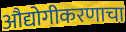
औद्योगीकरणाचा